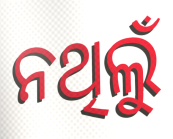
ନଥିଲୁଁ